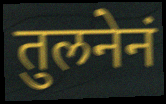
तुलनेनं